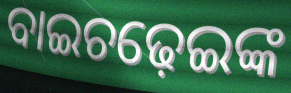
ବାଇଚଢ଼େଇଙ୍କ